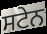
ਸਟੇਨ